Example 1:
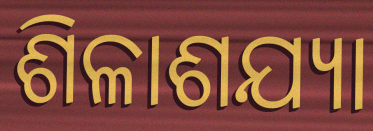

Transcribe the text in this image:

ଶିଳାଶଯ୍ୟା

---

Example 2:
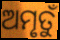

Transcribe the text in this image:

ଅମୃତୁଁ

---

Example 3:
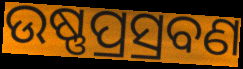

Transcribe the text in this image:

ଉଷ୍ଣପ୍ରସ୍ରବଣ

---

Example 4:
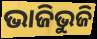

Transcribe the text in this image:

ଭାଜିଭୁଜି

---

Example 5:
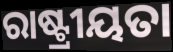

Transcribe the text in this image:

ରାଷ୍ଟ୍ରୀୟତା